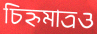
চিহ্নমাত্রও